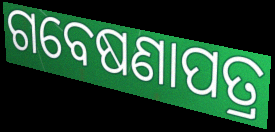
ଗବେଷଣାପତ୍ର